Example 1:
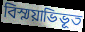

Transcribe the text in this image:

বিস্ময়াভিভূত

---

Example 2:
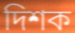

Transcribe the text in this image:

দিশক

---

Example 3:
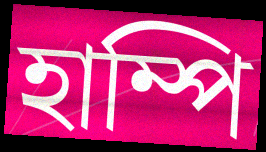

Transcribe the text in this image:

হাম্পি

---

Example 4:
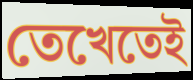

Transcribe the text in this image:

তেখেতেই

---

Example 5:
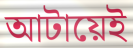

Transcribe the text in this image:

আটায়েই